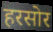
हरसोर